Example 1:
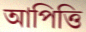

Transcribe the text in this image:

আপিত্তি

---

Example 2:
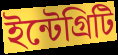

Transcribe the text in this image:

ইন্টেগ্রিটি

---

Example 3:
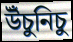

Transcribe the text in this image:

উঁচুনিচু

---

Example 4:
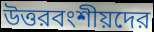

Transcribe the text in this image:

উত্তরবংশীয়দের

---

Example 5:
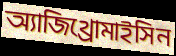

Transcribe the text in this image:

অ্যাজিথ্রোমাইসিন